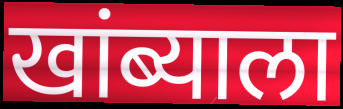
खांब्याला